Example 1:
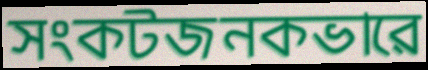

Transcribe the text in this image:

সংকটজনকভাৱে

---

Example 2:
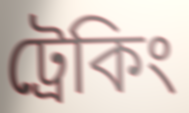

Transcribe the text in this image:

ট্ৰেকিং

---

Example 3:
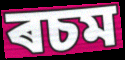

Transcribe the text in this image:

ৰচম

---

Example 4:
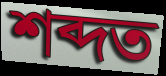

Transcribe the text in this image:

শব্দত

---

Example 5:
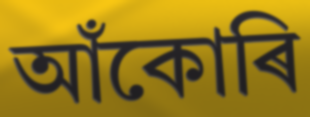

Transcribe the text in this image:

আঁকোৰি